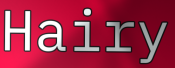
Hairy